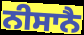
ਨੀਸਾਨੈ